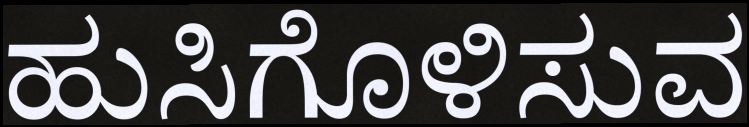
ಹುಸಿಗೊಳಿಸುವ